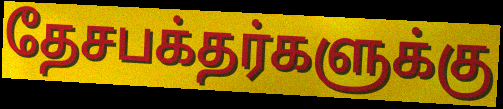
தேசபக்தர்களுக்கு